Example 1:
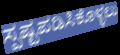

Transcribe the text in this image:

ಸ್ಪಷ್ಟಪಡಿಸಿಕೊಳ್ಳಲು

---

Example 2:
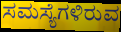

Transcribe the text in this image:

ಸಮಸ್ಯೆಗಳಿರುವ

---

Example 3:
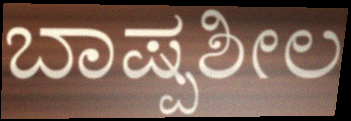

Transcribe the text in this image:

ಬಾಷ್ಪಶೀಲ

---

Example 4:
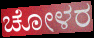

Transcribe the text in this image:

ಚೋಳರ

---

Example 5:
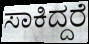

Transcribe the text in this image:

ಸಾಕಿದ್ದರೆ